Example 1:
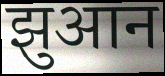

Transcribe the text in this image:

झुआन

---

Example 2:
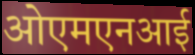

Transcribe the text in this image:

ओएमएनआई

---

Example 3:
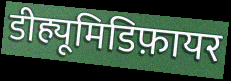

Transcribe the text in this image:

डीह्यूमिडिफ़ायर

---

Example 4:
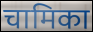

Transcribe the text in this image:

चामिका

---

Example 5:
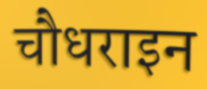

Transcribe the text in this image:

चौधराइन